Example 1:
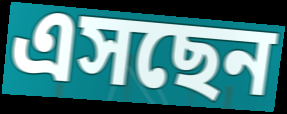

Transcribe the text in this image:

এসছেন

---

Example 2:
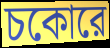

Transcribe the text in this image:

চকোরে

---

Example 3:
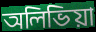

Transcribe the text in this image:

অলিভিয়া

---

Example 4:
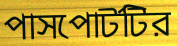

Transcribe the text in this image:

পাসপোর্টটির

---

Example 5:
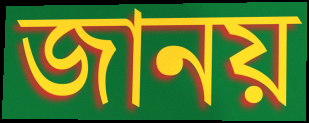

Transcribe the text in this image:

জানয়